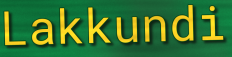
Lakkundi